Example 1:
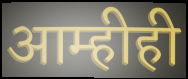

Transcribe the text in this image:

आम्हीही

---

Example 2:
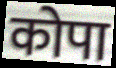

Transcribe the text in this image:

कोपा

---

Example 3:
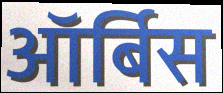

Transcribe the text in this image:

ऑर्बिस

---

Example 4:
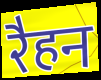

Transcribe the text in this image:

रैहन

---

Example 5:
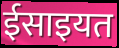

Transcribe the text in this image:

ईसाइयत